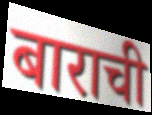
बाराची